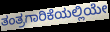
ತಂತ್ರಗಾರಿಕೆಯಲ್ಲಿಯೇ